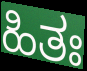
ಹಿತಃ